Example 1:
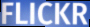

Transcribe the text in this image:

FLICKR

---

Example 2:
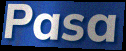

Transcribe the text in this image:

Pasa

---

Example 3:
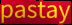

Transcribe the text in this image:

pastay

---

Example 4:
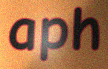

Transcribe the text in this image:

aph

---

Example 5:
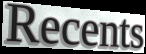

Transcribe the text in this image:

Recents